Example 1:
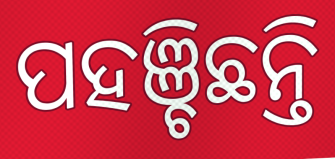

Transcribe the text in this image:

ପହଞ୍ଚିଛନ୍ତି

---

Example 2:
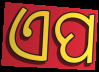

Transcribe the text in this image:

ଏପ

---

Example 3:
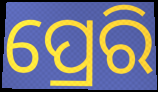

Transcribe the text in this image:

ପ୍ରେରି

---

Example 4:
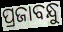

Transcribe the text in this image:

ପ୍ରଜାବନ୍ଧୁ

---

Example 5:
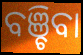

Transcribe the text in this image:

ବଞ୍ଚିବା